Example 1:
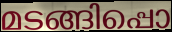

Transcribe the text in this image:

മടങ്ങിപ്പൊ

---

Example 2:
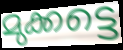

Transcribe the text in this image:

മുക്കട്ടെ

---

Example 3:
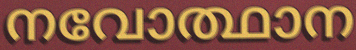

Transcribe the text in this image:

നവോത്ഥാന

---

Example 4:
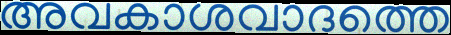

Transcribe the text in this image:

അവകാശവാദത്തെ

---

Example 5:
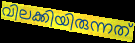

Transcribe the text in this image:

വിലക്കിയിരുന്നത്